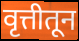
वृत्तीतून